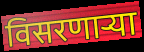
विसरणाऱ्या